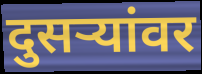
दुसर्‍यांवर